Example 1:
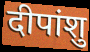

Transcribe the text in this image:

दीपांशु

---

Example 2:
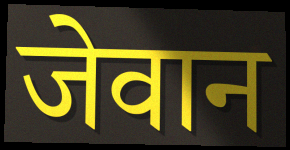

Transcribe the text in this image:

जेवान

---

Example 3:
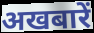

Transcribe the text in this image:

अखबारें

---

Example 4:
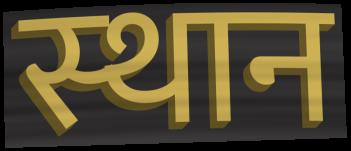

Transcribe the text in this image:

स्‍थान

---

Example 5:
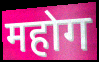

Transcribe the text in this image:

महोग